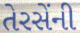
તેરસેંની